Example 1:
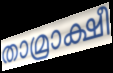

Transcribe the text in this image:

താമ്രാക്ഷീ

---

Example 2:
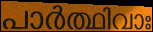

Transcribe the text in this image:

പാർത്ഥിവാഃ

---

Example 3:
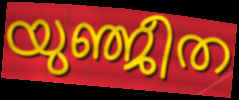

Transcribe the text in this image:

യുഞ്ജീത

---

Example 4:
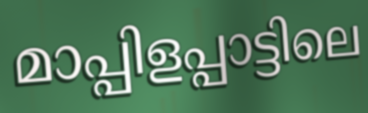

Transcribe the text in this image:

മാപ്പിളപ്പാട്ടിലെ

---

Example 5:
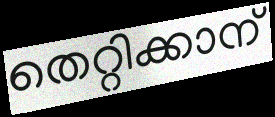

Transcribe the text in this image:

തെറ്റിക്കാന്